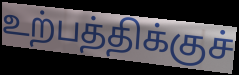
உற்பத்திக்குச்